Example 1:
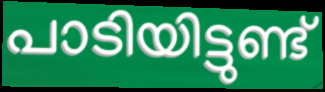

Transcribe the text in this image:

പാടിയിട്ടുണ്ട്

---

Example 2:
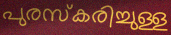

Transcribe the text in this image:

പുരസ്കരിച്ചുള്ള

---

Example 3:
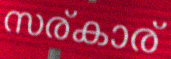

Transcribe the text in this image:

സര്കാര്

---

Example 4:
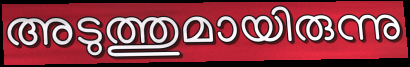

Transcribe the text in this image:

അടുത്തുമായിരുന്നു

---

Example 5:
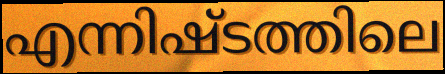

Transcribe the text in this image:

എന്നിഷ്ടത്തിലെ